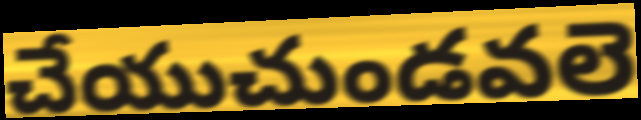
చేయుచుండవలె